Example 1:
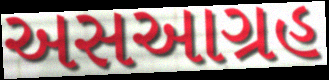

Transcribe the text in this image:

અસઆગ્રહ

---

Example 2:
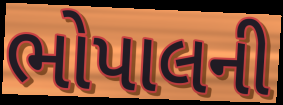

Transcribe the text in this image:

ભોપાલની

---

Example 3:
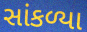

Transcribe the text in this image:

સાંકળ્યા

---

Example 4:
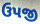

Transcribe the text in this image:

ઉપજી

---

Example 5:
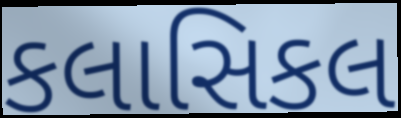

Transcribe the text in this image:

કલાસિકલ